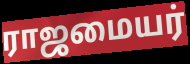
ராஜமையர்